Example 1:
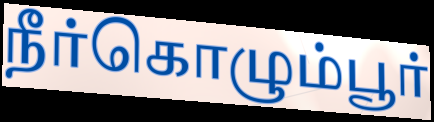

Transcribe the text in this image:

நீர்கொழும்பூர்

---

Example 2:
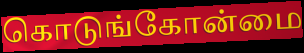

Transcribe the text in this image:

கொடுங்கோன்மை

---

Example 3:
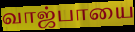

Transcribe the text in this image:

வாஜ்பாயை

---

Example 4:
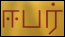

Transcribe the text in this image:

ஈபர்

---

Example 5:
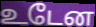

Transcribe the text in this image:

உடேன